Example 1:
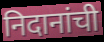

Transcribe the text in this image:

निदानांची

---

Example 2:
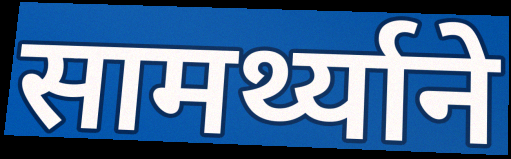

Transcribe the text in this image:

सामर्थ्याने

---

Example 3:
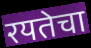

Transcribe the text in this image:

रयतेचा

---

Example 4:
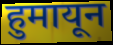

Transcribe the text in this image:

हुमायून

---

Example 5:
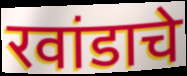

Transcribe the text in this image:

रवांडाचे